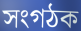
সংগঠক